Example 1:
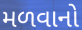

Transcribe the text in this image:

મળવાનો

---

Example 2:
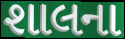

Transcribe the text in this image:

શાલના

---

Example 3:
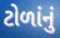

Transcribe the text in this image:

ટોળાંનું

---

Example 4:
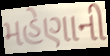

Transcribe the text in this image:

મહેણાની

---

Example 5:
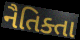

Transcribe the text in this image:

નૈતિક્તા